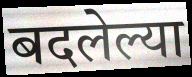
बदलेल्या